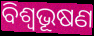
ବିଶ୍ବଭୂଷଣ